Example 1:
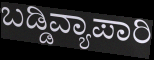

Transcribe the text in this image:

ಬಡ್ಡಿವ್ಯಾಪಾರಿ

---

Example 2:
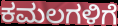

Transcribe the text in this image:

ಕಮಲಗಳಿಗೆ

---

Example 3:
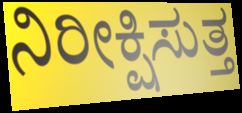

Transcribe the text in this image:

ನಿರೀಕ್ಷಿಸುತ್ತ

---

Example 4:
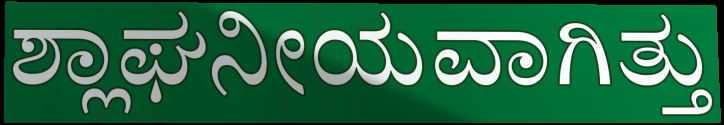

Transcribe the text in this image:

ಶ್ಲಾಘನೀಯವಾಗಿತ್ತು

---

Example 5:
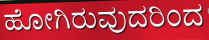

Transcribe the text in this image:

ಹೋಗಿರುವುದರಿಂದ